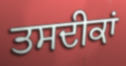
ਤਸਦੀਕਾਂ